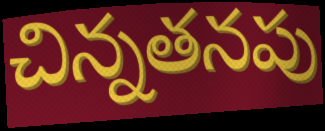
చిన్నతనపు